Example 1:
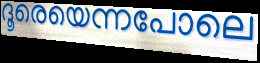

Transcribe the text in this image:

ദൂരെയെന്നപോലെ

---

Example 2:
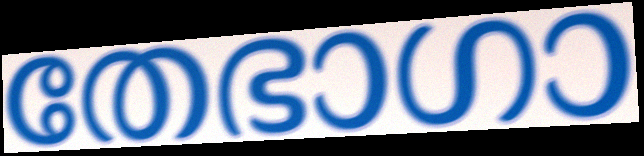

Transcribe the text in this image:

തേഭാഗാ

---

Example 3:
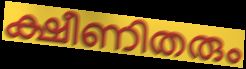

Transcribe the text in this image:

ക്ഷീണിതരും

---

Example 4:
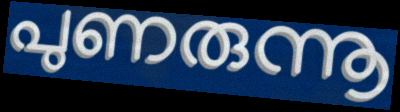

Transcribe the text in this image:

പുണരുന്നൂ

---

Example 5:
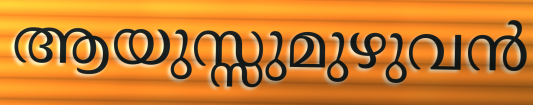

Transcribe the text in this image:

ആയുസ്സുമുഴുവൻ